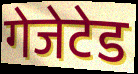
गेजेटेड